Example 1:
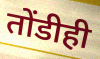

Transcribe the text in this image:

तोंडीही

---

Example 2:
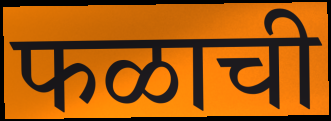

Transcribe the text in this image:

फळाची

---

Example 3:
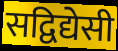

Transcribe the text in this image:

सद्विद्येसी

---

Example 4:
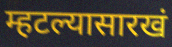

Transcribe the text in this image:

म्हटल्यासारखं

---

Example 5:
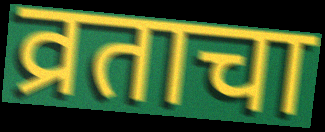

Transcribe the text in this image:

व्रताचा